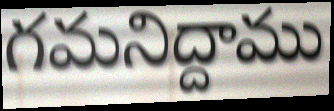
గమనిద్దాము